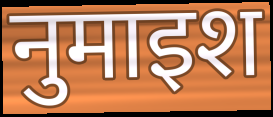
नुमाइश